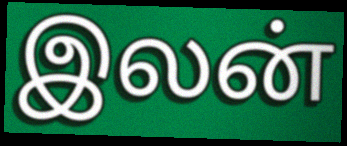
இலன்